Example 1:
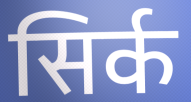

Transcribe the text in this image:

सिर्क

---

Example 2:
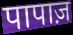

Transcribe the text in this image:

पापाज़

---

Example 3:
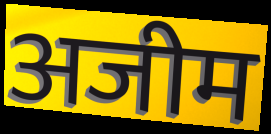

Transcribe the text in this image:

अजीम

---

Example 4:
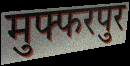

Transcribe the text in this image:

मुफ्फरपुर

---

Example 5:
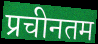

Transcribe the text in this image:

प्रचीनतम